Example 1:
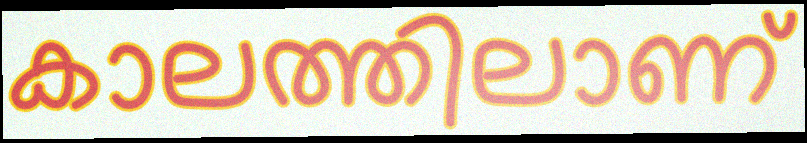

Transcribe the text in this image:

കാലത്തിലാണ്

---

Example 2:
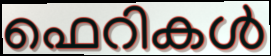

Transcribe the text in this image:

ഫെറികൾ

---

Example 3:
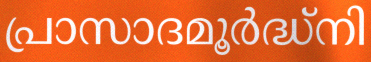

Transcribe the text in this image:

പ്രാസാദമൂർദ്ധ്നി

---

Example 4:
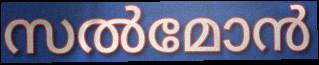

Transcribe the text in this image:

സൽമോൻ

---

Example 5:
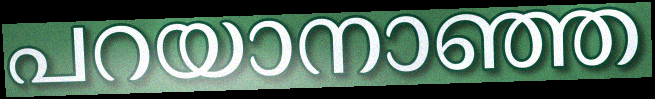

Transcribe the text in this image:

പറയാനാഞ്ഞ